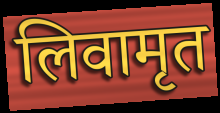
लिवामृत